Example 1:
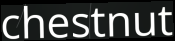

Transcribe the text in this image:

chestnut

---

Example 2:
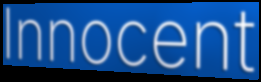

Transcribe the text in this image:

Innocent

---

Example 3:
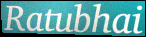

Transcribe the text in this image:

Ratubhai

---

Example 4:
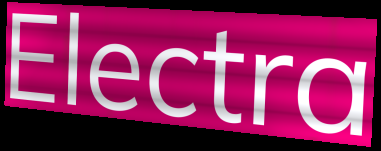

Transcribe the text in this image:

Electra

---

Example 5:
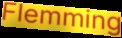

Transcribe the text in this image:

Flemming